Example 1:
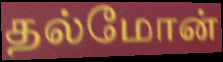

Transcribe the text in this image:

தல்மோன்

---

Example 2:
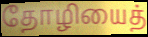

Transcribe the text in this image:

தோழியைத்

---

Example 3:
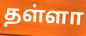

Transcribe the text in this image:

தள்ளா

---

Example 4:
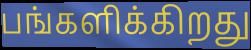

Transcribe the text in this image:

பங்களிக்கிறது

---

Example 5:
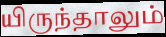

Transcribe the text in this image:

யிருந்தாலும்